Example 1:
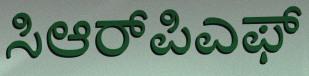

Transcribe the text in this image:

ಸಿಆರ್‌ಪಿಎಫ್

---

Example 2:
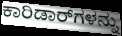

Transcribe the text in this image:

ಕಾರಿಡಾರ್‌ಗಳನ್ನು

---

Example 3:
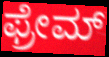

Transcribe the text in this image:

ಫ್ರೇಮ್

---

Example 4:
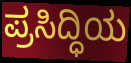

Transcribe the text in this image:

ಪ್ರಸಿದ್ಧಿಯ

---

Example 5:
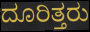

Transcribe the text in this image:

ದೂರಿತ್ತರು